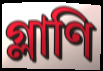
গ্লাণি